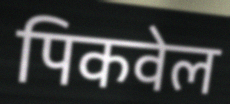
पिकवेल